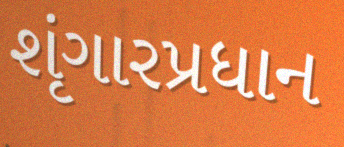
શૃંગારપ્રધાન